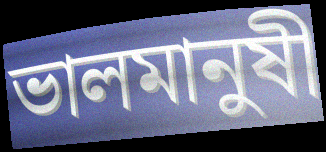
ভালমানুষী